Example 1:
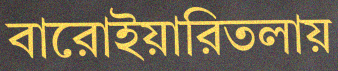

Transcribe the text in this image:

বারোইয়ারিতলায়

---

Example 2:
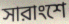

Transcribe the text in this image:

সারাংশে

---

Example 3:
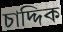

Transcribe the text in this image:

চাদ্দিক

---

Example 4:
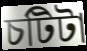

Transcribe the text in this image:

চটিটা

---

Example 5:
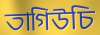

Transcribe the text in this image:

তাগিউচি